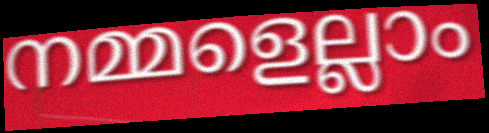
നമ്മളെല്ലാം